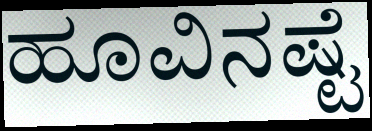
ಹೂವಿನಷ್ಟೆ